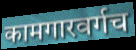
कामगारवर्गच